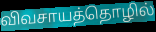
விவசாயத்தொழில்